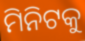
ମିନିଟକୁ